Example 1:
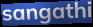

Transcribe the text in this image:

sangathi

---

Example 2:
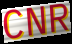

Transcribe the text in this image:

CNR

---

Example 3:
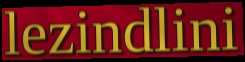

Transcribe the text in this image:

lezindlini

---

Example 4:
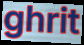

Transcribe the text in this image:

ghrit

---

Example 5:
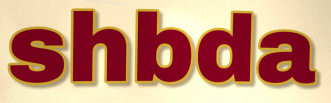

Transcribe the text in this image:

shbda